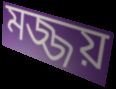
মজ্জয়